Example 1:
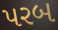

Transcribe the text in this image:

પરબ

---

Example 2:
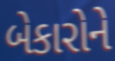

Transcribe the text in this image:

બેકારોને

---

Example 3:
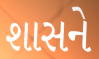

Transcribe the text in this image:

શાસને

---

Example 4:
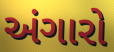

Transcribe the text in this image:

અંગારો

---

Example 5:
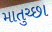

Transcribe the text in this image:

માતુચ્છા